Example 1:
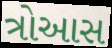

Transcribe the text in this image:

ત્રોઆસ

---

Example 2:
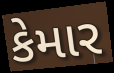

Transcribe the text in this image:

કેમાર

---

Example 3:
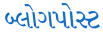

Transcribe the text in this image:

બ્લોગપોસ્ટ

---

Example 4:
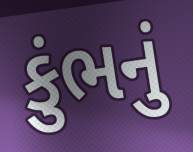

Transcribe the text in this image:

કુંભનું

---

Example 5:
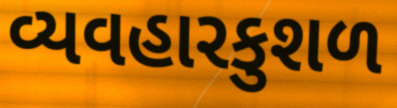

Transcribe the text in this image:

વ્યવહારકુશળ